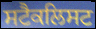
ਸਟੈਕਲਿਸਟ